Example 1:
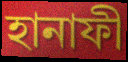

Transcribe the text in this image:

হানাফী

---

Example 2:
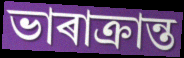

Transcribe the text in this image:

ভাৰাক্ৰান্ত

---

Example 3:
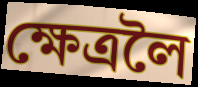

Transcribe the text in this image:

ক্ষেত্ৰলৈ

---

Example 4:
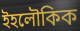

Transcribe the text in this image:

ইহলৌকিক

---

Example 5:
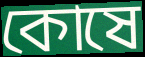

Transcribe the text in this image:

কোষে